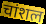
चांशल